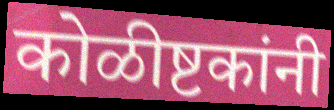
कोळीष्टकांनी